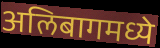
अलिबागमध्ये